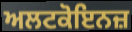
ਅਲਟਕੋਇਨਜ਼